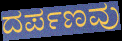
ದರ್ಪಣವು